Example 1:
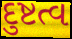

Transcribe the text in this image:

દુષ્ટત્વ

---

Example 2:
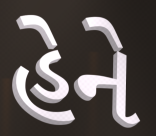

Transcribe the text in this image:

હેને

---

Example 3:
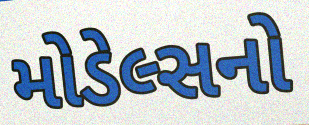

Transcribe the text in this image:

મોડેલ્સનો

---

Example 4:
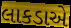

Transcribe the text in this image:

લાકડાએ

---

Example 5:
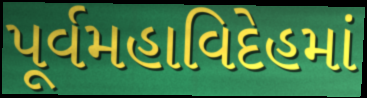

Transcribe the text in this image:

પૂર્વમહાવિદેહમાં